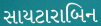
સાયટારાબિન